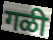
गळी